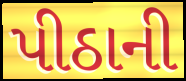
પીઠાની